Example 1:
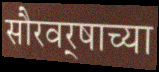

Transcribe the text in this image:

सौरवर्षाच्या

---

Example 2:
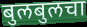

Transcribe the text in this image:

बुलबुलचा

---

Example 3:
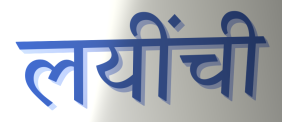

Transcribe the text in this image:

लयींची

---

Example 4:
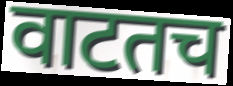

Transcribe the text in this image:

वाटतच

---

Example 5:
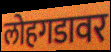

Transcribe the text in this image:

लोहगडावर